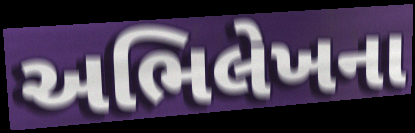
અભિલેખના